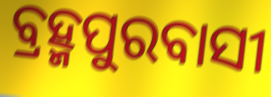
ବ୍ରହ୍ମପୁରବାସୀ